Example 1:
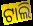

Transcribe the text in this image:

ଟାଲି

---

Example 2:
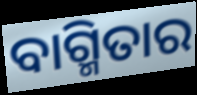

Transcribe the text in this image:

ବାଗ୍ମିତାର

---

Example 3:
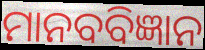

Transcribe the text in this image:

ମାନବବିଜ୍ଞାନ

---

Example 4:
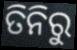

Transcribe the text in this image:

ତିନିରୁ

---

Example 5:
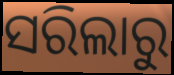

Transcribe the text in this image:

ସରିଲାରୁ